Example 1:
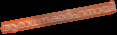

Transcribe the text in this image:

ആരാധനക്കർഹനായി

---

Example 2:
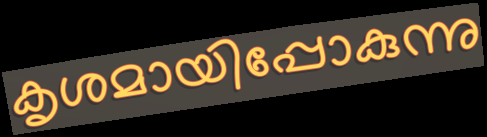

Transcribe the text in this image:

കൃശമായിപ്പോകുന്നു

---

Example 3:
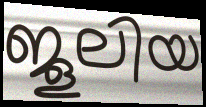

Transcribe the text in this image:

ജൂലിയ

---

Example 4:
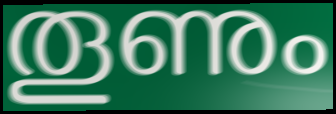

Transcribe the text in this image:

തൂണും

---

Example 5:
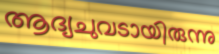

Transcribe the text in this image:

ആദ്യചുവടായിരുന്നു